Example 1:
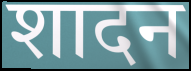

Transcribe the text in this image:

शादन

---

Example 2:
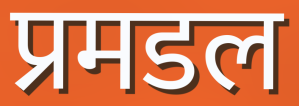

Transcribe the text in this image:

प्रमडल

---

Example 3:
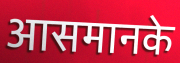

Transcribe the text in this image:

आसमानके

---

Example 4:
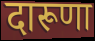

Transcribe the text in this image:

दारूणा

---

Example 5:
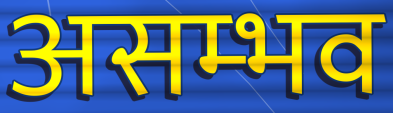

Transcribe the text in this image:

असम्‍भव